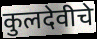
कुलदेवीचे